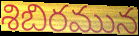
శిబిరమున